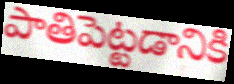
పాతిపెట్టడానికి